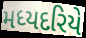
મધ્યદરિયે